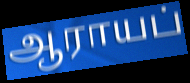
ஆராயப்